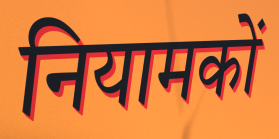
नियामकों